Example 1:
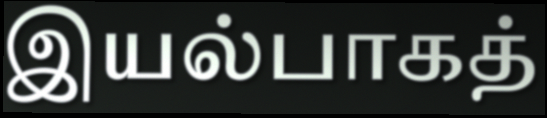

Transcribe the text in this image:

இயல்பாகத்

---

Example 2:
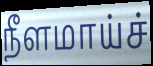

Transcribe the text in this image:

நீளமாய்ச்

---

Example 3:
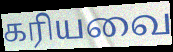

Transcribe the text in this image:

கரியவை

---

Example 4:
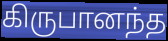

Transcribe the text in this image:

கிருபானந்த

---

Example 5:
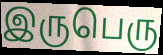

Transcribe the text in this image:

இருபெரு